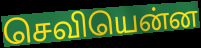
செவியென்ன